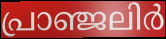
പ്രാഞ്ജലിർ